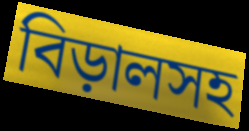
বিড়ালসহ